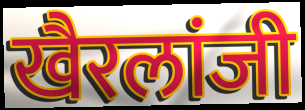
खैरलांजी